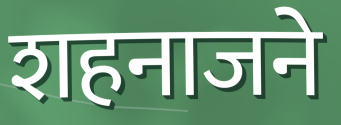
शहनाजने